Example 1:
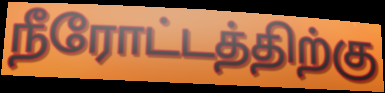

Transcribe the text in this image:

நீரோட்டத்திற்கு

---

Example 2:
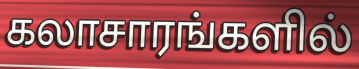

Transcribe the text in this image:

கலாசாரங்களில்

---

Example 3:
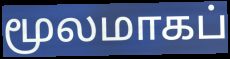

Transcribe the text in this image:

மூலமாகப்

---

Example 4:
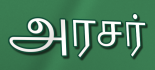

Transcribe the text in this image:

அரசர்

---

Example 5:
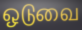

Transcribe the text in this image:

ஒடுவை